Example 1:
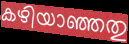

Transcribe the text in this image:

കഴിയാഞ്ഞതു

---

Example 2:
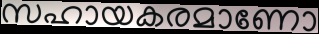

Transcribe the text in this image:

സഹായകരമാണോ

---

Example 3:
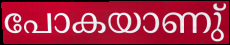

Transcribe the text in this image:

പോകയാണു്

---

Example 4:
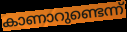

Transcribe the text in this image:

കാണാറുണ്ടെന്ന്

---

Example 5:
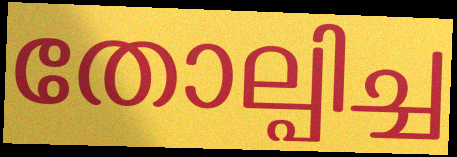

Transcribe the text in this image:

തോല്പിച്ച